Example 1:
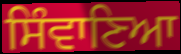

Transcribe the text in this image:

ਸਿੰਵਾਣਿਆ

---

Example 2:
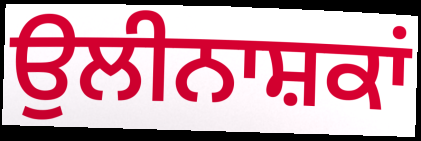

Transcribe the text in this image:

ਉਲੀਨਾਸ਼ਕਾਂ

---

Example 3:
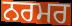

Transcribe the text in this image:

ਨਰਮਰ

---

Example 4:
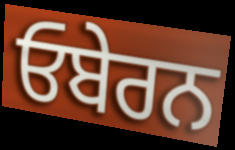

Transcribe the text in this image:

ਓਬੇਰਨ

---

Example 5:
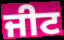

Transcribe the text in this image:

ਜੀਟ